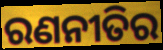
ରଣନୀତିର